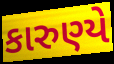
કારુણ્યે